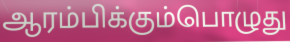
ஆரம்பிக்கும்பொழுது